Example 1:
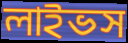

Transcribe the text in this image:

লাইভস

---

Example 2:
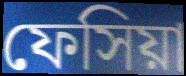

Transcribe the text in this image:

ফেসিয়া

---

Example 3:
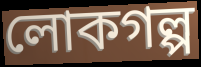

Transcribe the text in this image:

লোকগল্প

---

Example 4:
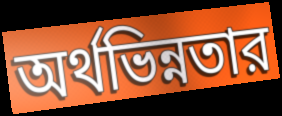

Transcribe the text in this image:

অর্থভিন্নতার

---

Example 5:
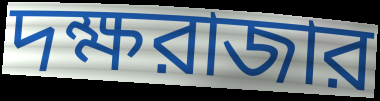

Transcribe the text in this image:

দক্ষরাজার